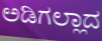
ಅಡಿಗಲ್ಲಾದ